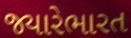
જ્યારેભારત